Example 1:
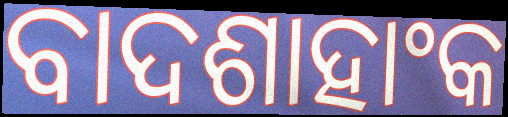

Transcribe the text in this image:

ବାଦଶାହାଂକ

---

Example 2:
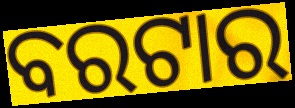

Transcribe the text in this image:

ବରଟାର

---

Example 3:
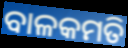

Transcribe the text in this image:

ବାଳକମତି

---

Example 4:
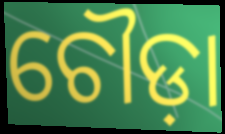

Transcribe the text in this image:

ଚୌଡ଼ା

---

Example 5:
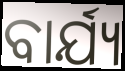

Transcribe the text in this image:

ବାର୍ଯ୍ୟ